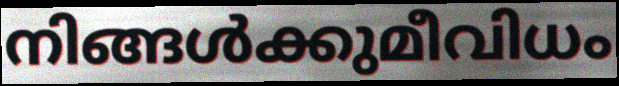
നിങ്ങൾക്കുമീവിധം